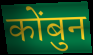
कोंबुन